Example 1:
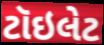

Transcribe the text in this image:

ટૉઇલેટ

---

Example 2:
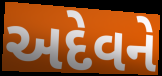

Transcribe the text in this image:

અદેવને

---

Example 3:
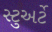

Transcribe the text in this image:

સ્ટુઅર્ટે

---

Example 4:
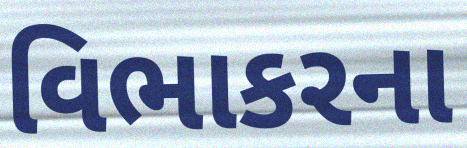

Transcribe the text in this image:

વિભાકરના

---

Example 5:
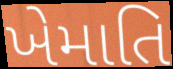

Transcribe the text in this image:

ખેમાતિ